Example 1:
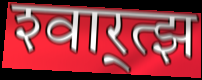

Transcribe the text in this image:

श्वार्त्झ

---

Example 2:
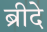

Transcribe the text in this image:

ब्रीदे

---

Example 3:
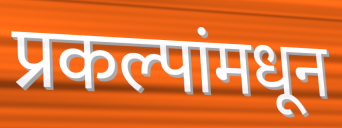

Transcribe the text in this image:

प्रकल्पांमधून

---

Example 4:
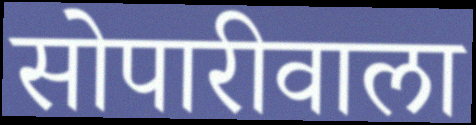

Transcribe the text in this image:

सोपारीवाला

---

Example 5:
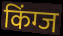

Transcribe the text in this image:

किंग्ज